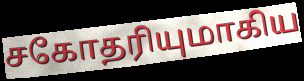
சகோதரியுமாகிய